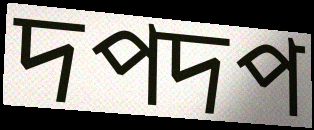
দপদপ